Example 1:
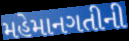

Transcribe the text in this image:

મહેમાનગતીની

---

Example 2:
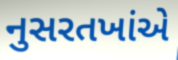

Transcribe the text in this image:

નુસરતખાંએ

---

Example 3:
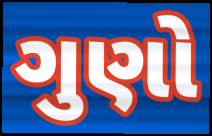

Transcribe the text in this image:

ગુણો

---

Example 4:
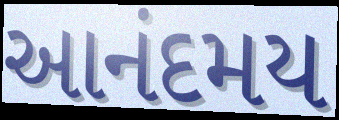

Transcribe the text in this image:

આનંદમય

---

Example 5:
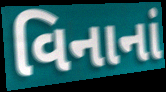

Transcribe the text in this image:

વિનાનાં